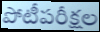
పోటీపరీక్షల